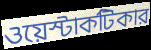
ওয়েস্টার্কটিকার